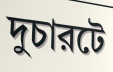
দুচারটে